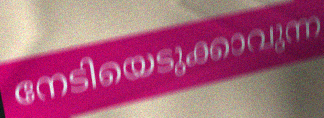
നേടിയെടുക്കാവുന്ന